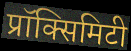
प्रॉक्सिमिटी